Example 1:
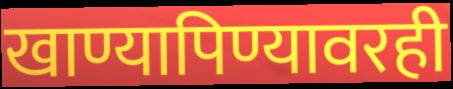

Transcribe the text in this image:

खाण्यापिण्यावरही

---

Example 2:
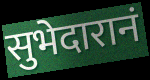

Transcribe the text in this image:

सुभेदारानं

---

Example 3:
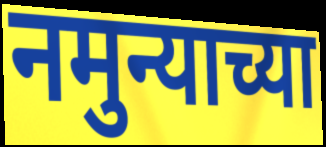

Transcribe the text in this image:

नमुन्याच्या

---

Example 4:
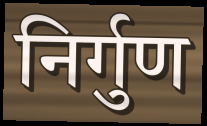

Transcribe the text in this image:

निर्गुण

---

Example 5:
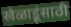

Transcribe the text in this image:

खेळाडूंसाठी